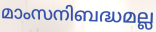
മാംസനിബദ്ധമല്ല